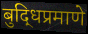
बुद्धिप्रमाणे